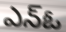
ఎన్ఓ